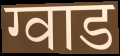
ग्वाड